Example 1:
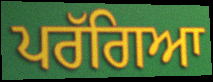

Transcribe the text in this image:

ਪਰੱਗਿਆ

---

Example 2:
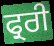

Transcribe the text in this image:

ਫ੍ਰਰੀ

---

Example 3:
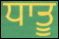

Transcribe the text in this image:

ਧਾਤੂ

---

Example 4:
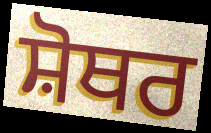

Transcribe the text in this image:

ਸ਼ੋਥਰ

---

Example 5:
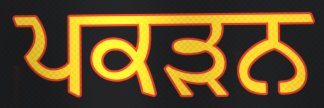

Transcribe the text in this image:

ਪਕੜਨ